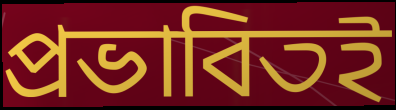
প্রভাবিতই